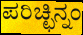
ಪರಿಚ್ಛಿನ್ನಂ